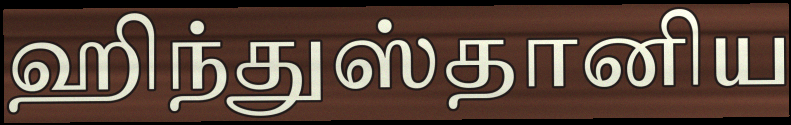
ஹிந்துஸ்தானிய